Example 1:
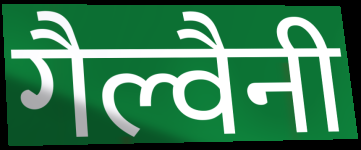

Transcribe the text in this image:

गैल्वैनी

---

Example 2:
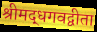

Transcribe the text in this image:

श्रीमद्धगवद्वीता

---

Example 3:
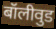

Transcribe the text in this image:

बॉलीवुड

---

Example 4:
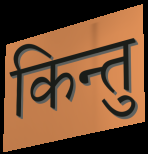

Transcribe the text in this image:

किन्तु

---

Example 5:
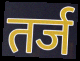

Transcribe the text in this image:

तर्ज